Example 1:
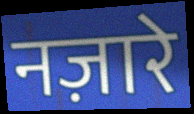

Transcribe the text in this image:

नज़ारे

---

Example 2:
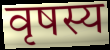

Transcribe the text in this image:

वृषस्य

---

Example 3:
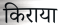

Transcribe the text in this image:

किराया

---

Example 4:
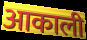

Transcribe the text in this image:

आकाली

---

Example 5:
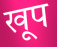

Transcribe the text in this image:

खूप